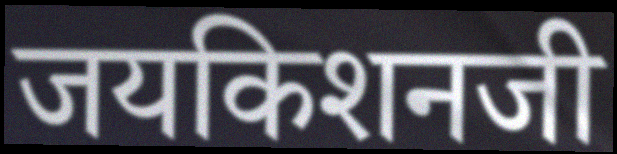
जयकिशनजी